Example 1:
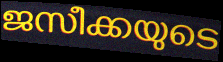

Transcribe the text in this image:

ജസീക്കയുടെ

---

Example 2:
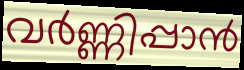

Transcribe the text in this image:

വർണ്ണിപ്പാൻ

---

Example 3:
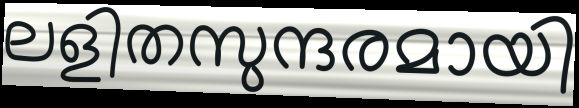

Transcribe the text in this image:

ലളിതസുന്ദരമായി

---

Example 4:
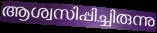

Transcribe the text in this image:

ആശ്വസിപ്പിച്ചിരുന്നു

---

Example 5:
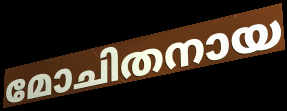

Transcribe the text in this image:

മോചിതനായ